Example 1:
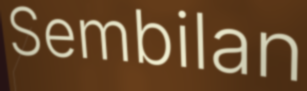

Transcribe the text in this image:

Sembilan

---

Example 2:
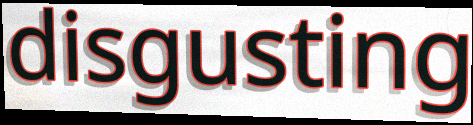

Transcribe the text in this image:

disgusting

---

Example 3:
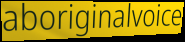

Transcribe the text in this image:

aboriginalvoice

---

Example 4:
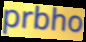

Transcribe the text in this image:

prbho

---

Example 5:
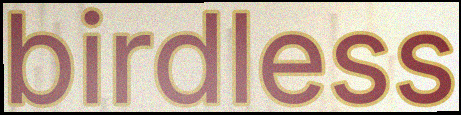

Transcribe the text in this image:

birdless